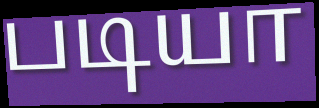
படியா